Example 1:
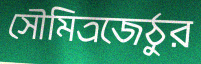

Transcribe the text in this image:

সৌমিত্রজেঠুর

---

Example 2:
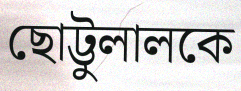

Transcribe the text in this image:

ছোট্টুলালকে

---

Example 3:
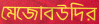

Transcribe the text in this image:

মেজোবউদির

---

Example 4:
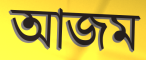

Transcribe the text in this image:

আজম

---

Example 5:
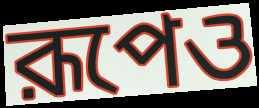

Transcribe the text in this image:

রূপেও